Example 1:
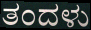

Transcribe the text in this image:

ತಂದಳು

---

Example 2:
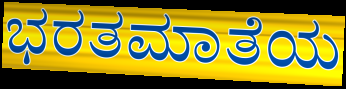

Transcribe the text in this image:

ಭರತಮಾತೆಯ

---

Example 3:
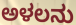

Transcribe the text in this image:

ಅಳಲನು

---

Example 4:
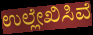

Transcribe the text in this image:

ಉಲ್ಲೇಖಿಸಿವೆ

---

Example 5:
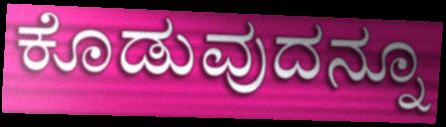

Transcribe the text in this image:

ಕೊಡುವುದನ್ನೂ